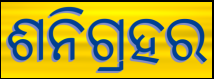
ଶନିଗ୍ରହର